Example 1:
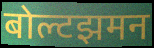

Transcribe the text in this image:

बोल्टझमन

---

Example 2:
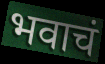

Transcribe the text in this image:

भवाचं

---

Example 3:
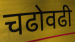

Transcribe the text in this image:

चढोवढी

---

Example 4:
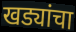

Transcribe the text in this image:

खड्यांचा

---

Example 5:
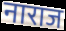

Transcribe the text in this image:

नाराज